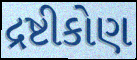
દ્રષ્ટીકોણ